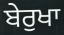
ਬੇਰੁਖਾ